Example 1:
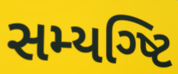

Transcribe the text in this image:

સમ્યગ્ષ્ટિ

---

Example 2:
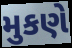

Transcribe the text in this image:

મુકણે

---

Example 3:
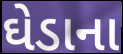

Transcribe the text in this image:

ઘેડાના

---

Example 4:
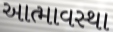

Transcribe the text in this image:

આત્માવસ્થા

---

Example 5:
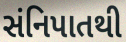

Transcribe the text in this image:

સંનિપાતથી